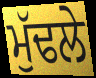
ਮੁੱਢਲੇ